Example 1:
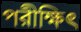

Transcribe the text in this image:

পরীক্ষিৎ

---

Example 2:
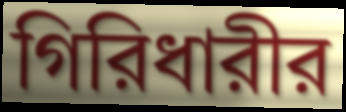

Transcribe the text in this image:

গিরিধারীর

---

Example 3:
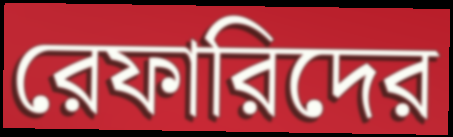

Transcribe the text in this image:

রেফারিদের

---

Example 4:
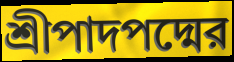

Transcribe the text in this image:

শ্রীপাদপদ্মের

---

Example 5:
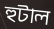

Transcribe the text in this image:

হুটাল